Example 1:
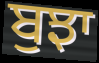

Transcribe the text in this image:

ਬੁਝਾ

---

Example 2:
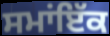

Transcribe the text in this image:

ਸਮਾਂਇੱਕ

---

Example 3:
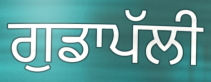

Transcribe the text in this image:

ਗੁਡਾਪੱਲੀ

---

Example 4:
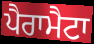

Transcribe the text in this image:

ਪੈਰਾਮੈਟਾ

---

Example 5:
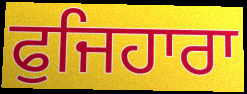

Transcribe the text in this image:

ਫੁਜਿਹਾਰਾ